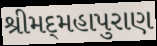
શ્રીમદ્‌મહાપુરાણ